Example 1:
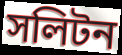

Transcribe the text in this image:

সলিটন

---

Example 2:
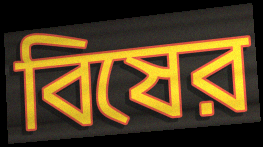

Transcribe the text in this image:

বিষের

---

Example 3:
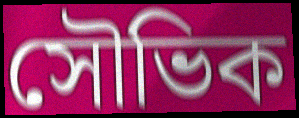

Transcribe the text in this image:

সৌভিক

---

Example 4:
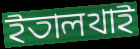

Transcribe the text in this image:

ইতালথাই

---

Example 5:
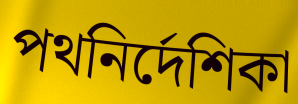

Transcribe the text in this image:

পথনির্দেশিকা